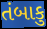
તંબાકુ